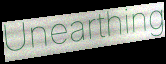
Unearthing